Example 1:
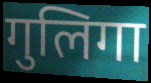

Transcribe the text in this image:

गुलिगा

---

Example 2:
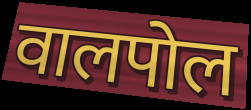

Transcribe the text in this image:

वालपोल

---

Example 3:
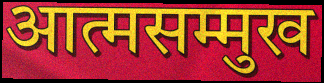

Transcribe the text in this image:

आत्मसम्मुख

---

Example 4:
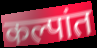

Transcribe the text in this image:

कल्पांत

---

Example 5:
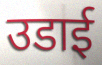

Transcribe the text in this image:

उडाई